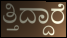
ತ್ತಿದ್ದಾರೆ